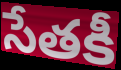
సేతకీ